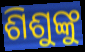
ଶିଶୁଙ୍କୁ